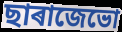
ছাৰাজেভো